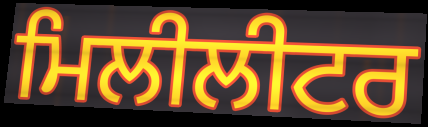
ਮਿਲੀਲੀਟਰ